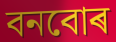
বনবোৰ